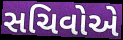
સચિવોએ